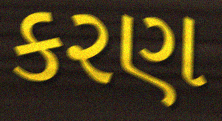
કરણ